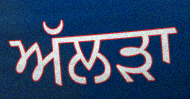
ਅੱਲੜਾ